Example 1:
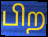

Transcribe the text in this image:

பிற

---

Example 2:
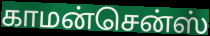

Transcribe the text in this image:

காமன்சென்ஸ்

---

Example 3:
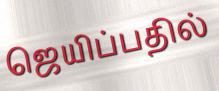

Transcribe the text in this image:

ஜெயிப்பதில்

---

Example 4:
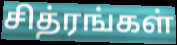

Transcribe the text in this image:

சித்ரங்கள்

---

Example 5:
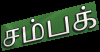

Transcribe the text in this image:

சம்பக்